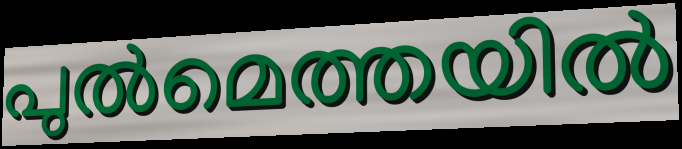
പുൽമെത്തയിൽ